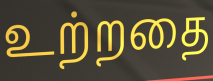
உற்றதை